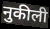
नुकीली